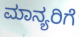
ಮಾನ್ಯರಿಗೆ